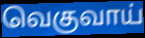
வெகுவாய்